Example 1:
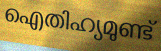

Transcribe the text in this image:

ഐതിഹ്യമുണ്ട്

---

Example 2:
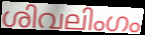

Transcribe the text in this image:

ശിവലിംഗം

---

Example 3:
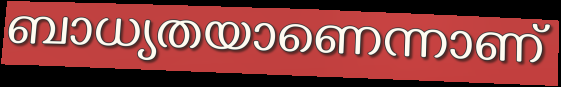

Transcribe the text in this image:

ബാധ്യതയാണെന്നാണ്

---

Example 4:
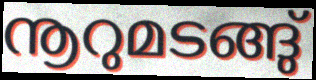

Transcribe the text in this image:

നൂറുമടങ്ങു്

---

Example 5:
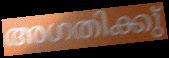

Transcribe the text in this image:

അഗതിക്കു്